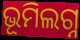
ଭୂମିଲଗ୍ନ